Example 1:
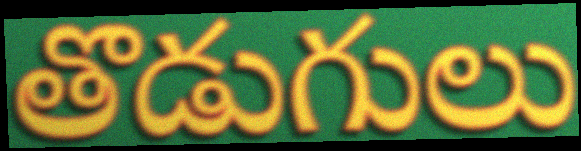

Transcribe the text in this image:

తొడుగులు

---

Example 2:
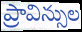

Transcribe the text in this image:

ప్రావిన్సుల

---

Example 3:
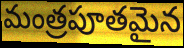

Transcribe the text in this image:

మంత్రపూతమైన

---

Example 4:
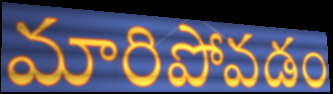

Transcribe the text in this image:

మారిపోవడం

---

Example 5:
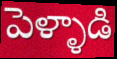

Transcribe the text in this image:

పెళ్ళాడి